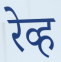
रेव्ह